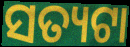
ସତ୍ୟଟା